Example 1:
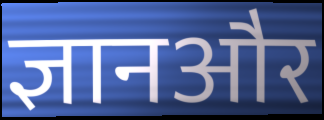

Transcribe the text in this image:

ज्ञानऔर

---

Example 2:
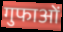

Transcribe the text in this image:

गुफाओं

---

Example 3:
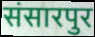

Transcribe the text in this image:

संसारपुर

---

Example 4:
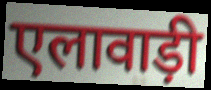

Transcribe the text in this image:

एलावाड़ी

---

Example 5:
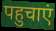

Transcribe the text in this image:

पहुचाएं